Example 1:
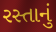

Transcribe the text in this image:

રસ્તાનું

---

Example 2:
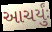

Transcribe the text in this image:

આચર્યુંઃ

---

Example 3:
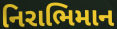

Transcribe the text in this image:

નિરાભિમાન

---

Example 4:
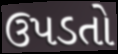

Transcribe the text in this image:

ઉપડતો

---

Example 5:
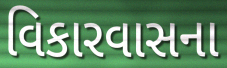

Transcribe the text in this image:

વિકારવાસના